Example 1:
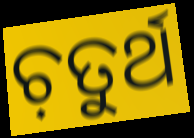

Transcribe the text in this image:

ଚ଼ତୁର୍ଥ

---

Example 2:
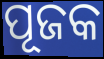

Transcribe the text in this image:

ପୂଜକ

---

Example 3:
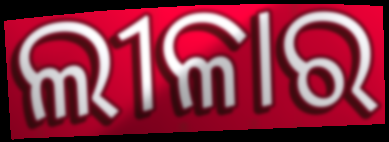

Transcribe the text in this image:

ଲୀଳାର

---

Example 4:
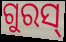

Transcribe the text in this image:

ଗୁରସ୍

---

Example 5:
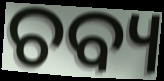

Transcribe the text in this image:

ଚବ୍ୟ